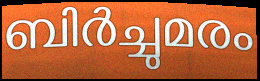
ബിർച്ചുമരം